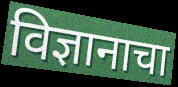
विज्ञानाचा